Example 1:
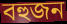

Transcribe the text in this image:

বহুজন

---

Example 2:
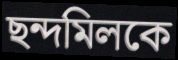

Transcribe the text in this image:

ছন্দমিলকে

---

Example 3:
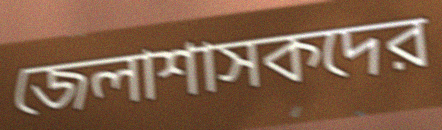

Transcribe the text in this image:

জেলাশাসকদের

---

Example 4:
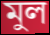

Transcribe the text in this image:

মুল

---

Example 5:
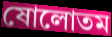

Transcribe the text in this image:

ষোলোতম